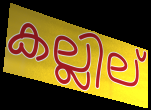
കല്ലില്